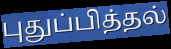
புதுப்பித்தல்